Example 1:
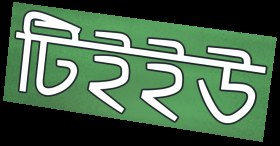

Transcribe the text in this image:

টিইইউ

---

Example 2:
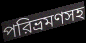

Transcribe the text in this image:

পরিভ্রমণসহ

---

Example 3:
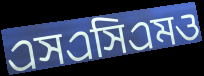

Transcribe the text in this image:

এসএসিএমও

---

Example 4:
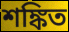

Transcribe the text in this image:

শঙ্কিত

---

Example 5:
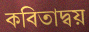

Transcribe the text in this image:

কবিতাদ্বয়